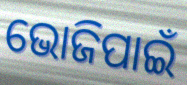
ଭୋଜିପାଇଁ